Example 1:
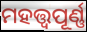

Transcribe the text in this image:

ମହତ୍ତ୍ୱପୂର୍ଣ୍ଣ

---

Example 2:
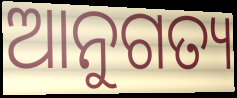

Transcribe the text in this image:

ଆନୁଗତ୍ୟ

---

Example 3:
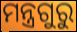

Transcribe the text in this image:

ମନ୍ତ୍ରଗୁରୁ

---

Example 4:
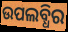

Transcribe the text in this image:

ଉପଲବ୍ଧିର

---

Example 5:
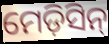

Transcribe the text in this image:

ମେଡ଼ିସିନ୍